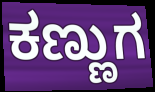
ಕಣ್ಣುಗ